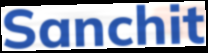
Sanchit